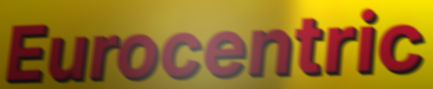
Eurocentric